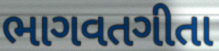
ભાગવતગીતા